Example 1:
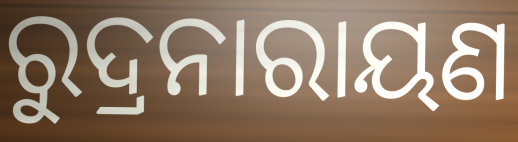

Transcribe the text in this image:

ରୁଦ୍ରନାରାୟଣ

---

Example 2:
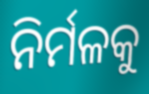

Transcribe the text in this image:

ନିର୍ମଳକୁ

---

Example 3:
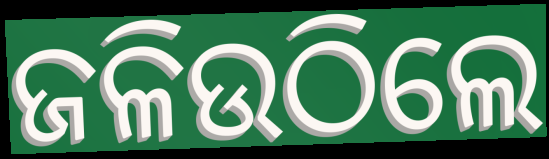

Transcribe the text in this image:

ଜଳିଉଠିଲେ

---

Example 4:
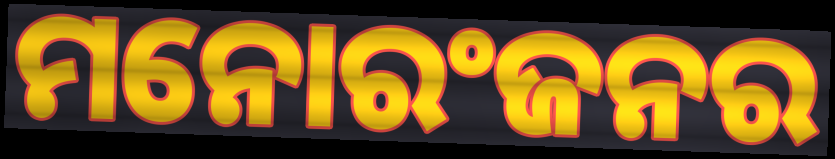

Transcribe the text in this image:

ମନୋରଂଜନର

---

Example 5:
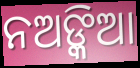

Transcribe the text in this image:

ନଅଙ୍କିଆ